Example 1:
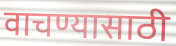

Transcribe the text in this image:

वाचण्यासाठी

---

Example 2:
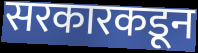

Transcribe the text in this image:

सरकारकडून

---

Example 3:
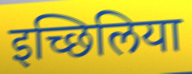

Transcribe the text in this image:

इच्छिलिया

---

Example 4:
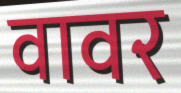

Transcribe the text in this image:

वावर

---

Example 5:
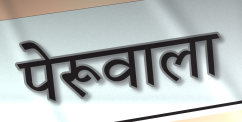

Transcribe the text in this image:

पेरूवाला